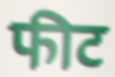
फीट